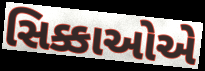
સિક્કાઓએ